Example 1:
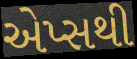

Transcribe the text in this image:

એપ્સથી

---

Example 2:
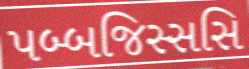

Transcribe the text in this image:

પબ્બજિસ્સસિ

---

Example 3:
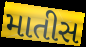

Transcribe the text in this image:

માતીસ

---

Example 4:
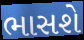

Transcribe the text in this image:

ભાસશે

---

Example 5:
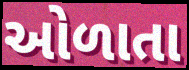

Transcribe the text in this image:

ઓળાતા